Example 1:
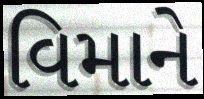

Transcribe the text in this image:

વિમાને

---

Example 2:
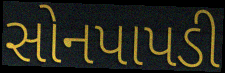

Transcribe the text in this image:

સોનપાપડી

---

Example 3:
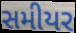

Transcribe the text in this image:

સમીયર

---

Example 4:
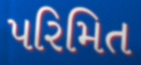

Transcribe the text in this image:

પરિમિત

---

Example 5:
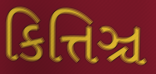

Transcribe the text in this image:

કિત્તિઞ્ચ